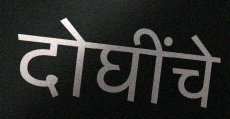
दोघींचे